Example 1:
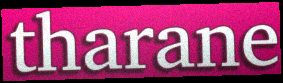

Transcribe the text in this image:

tharane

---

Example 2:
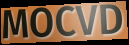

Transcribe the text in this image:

MOCVD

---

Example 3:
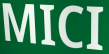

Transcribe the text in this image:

MICI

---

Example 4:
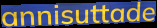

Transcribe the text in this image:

annisuttade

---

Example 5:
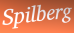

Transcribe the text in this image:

Spilberg